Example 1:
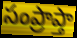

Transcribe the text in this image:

సంప్రాప్తా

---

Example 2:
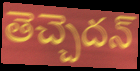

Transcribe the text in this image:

తెచ్చెదన్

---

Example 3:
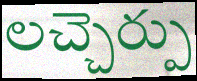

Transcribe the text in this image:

లచ్చెర్పు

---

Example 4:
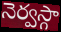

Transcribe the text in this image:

నెర్వస్గా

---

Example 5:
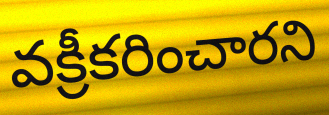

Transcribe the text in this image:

వక్రీకరించారని